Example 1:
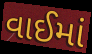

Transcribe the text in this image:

વાઈમાં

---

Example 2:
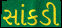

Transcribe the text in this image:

સાંકડી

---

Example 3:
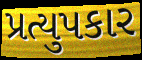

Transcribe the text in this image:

પ્રત્યુપકાર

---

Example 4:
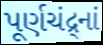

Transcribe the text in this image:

પૂર્ણચંદ્ર્નાં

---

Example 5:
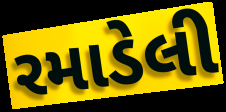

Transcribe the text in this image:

રમાડેલી